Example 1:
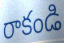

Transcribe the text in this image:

రాకండి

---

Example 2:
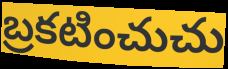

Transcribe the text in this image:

బ్రకటించుచు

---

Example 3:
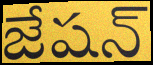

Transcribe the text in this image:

జేషన్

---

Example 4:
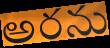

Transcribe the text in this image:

అరను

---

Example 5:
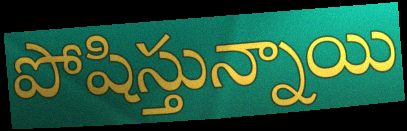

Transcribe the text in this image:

పోషిస్తున్నాయి